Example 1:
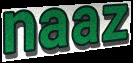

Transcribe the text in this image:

naaz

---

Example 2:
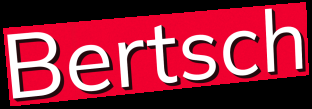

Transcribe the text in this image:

Bertsch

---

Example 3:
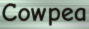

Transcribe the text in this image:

Cowpea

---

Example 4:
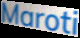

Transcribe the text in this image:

Maroti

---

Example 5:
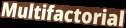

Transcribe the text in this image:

Multifactorial